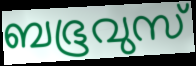
ബഭൂവുസ്